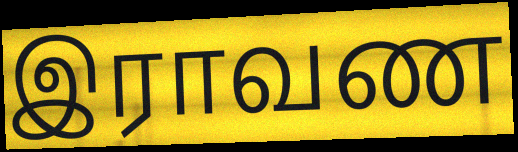
இராவண